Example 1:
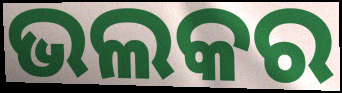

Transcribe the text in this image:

ଭଲକର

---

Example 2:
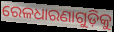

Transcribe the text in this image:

ରେଳଧାରଣାଗୁଡ଼ିକୁ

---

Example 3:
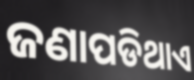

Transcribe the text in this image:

ଜଣାପଡିଥାଏ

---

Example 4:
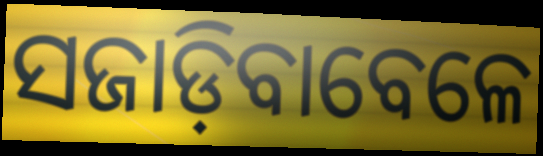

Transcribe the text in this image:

ସଜାଡ଼ିବାବେଳେ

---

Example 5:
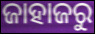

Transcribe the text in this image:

ଜାହାଜରୁ